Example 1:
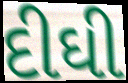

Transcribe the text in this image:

દીઘી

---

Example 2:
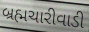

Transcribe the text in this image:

બ્રહ્મચારીવાડી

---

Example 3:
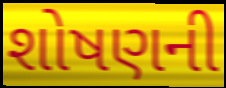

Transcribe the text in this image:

શોષણની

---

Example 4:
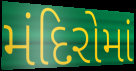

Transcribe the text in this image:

મંદિરોમાં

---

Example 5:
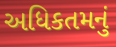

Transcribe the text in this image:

અધિકતમનું